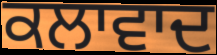
ਕਲਾਵਾਦ